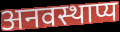
अनवस्थाप्य